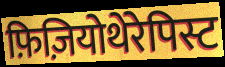
फ़िज़ियोथेरेपिस्ट